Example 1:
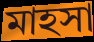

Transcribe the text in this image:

মাহসা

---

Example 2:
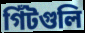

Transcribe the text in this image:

গিঁটগুলি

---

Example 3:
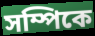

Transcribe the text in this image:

সম্পিকে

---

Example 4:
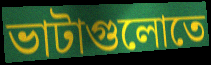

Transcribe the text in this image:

ভাটাগুলোতে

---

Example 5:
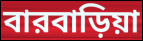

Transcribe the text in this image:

বারবাড়িয়া